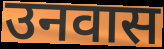
उनवास